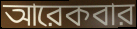
আরেকবার